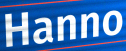
Hanno